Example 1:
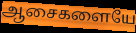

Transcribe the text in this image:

ஆசைகளையே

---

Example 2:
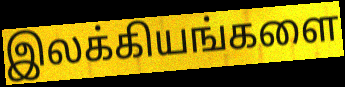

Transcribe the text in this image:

இலக்கியங்களை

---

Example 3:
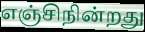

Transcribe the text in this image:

எஞ்சிநின்றது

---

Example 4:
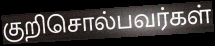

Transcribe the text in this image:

குறிசொல்பவர்கள்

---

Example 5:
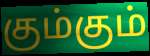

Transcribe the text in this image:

கும்கும்